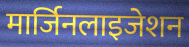
मार्जिनलाइजेशन